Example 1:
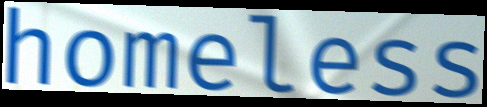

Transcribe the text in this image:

homeless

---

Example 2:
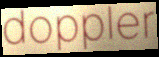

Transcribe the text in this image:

doppler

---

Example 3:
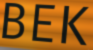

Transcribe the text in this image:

BEK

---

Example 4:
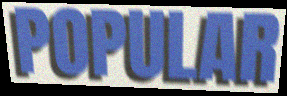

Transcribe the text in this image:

POPULAR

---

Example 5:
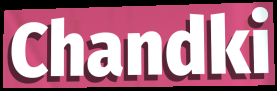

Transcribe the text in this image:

Chandki